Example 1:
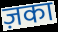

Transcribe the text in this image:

ज़का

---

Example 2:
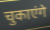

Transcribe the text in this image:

चुकाएंगे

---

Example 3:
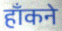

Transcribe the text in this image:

हाँकने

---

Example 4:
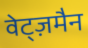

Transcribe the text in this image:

वेट्ज़मैन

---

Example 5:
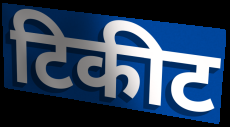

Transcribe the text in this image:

टिकीट